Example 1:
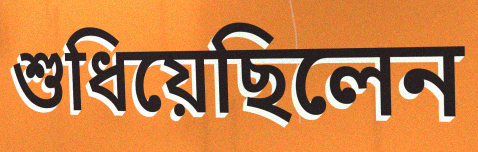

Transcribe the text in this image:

শুধিয়েছিলেন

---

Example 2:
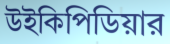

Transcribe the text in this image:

উইকিপিডিয়ার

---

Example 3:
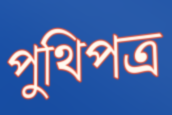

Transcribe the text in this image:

পুথিপত্র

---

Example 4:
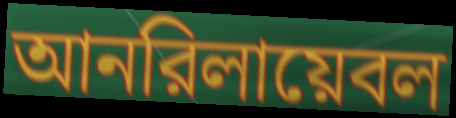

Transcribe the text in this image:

আনরিলায়েবল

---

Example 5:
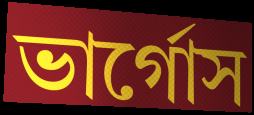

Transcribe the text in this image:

ভার্গোস